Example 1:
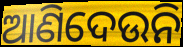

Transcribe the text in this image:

ଆଣିଦେଉନି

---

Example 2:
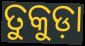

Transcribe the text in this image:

ତୁକୁଡ଼ା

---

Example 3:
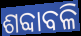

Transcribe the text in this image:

ଶବ୍ଦାବଳି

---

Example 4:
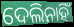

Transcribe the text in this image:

ଦେଲିନାହିଁ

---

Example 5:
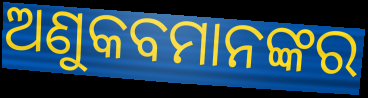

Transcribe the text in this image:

ଅଣୁକବମାନଙ୍କର